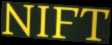
NIFT